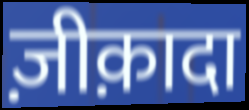
ज़ीक़ादा